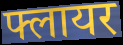
फ्लायर